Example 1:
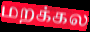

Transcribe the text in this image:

மறக்கல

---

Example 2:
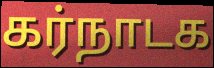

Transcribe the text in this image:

கர்நாடக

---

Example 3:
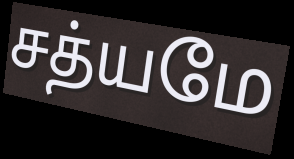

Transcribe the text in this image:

சத்யமே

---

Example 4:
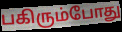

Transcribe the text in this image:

பகிரும்போது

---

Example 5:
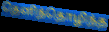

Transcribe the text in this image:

தெளிந்தொழிந்த